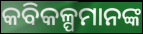
କବିକଳ୍ପମାନଙ୍କ